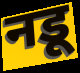
नडू